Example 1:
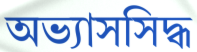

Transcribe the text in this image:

অভ্যাসসিদ্ধ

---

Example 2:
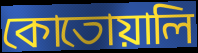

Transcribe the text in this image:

কোতোয়ালি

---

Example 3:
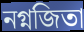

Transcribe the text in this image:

নগ্নজিতা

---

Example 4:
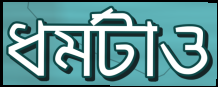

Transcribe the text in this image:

ধর্মটাও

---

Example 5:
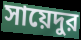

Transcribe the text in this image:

সায়েদুর